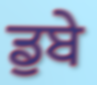
ਡੁਬੇ